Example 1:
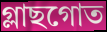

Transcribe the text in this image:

গ্লাছগোত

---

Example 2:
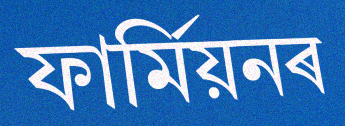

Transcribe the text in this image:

ফাৰ্মিয়নৰ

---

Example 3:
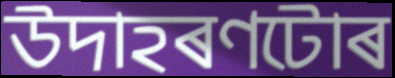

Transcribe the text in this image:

উদাহৰণটোৰ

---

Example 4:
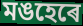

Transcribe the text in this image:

মঙহেৰে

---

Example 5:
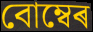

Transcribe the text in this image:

বোম্বেৰ